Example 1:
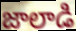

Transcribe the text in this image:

జాలాడి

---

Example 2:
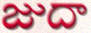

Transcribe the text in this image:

జుదా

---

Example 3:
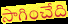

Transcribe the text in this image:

సాగించేది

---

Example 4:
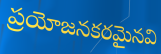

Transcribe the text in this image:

ప్రయోజనకరమైనవి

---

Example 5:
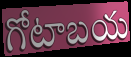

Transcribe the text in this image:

గోటాబయ